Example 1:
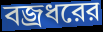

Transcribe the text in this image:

বজ্রধরের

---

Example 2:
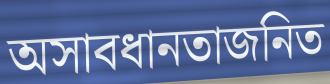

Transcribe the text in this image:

অসাবধানতাজনিত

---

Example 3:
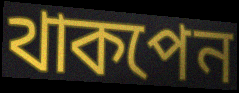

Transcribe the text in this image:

থাকপেন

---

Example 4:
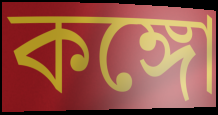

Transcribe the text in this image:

কঙ্গো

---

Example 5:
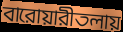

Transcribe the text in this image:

বারোয়ারীতলায়